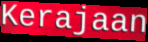
Kerajaan